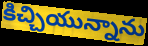
కిచ్చియున్నాను